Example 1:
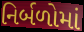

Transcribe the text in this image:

નિર્બળોમાં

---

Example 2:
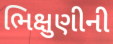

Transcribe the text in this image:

ભિક્ષુણીની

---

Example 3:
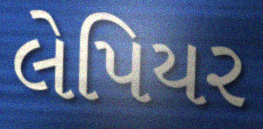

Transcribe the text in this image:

લેપિયર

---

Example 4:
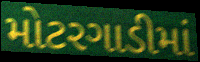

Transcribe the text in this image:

મોટરગાડીમાં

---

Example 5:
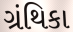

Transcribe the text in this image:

ગ્રંથિકા